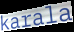
karala